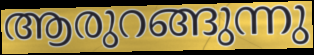
ആരുറങ്ങുന്നു